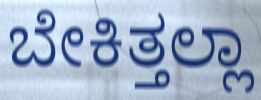
ಬೇಕಿತ್ತಲ್ಲಾ